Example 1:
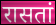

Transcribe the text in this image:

रासतां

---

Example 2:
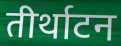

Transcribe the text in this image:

तीर्थाटन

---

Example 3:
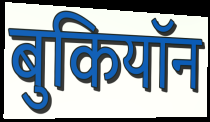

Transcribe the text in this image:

बुकियॉन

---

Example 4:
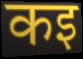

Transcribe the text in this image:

कइ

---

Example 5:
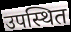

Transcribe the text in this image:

उपस्थित